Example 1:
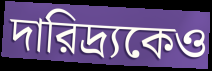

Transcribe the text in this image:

দারিদ্র্যকেও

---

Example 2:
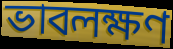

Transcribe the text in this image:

ভাবলক্ষণ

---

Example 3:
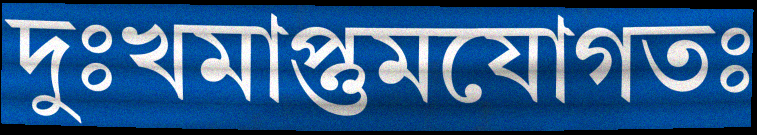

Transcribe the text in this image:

দুঃখমাপ্তুমযোগতঃ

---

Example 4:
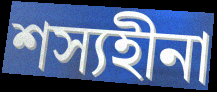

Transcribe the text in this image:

শস্যহীনা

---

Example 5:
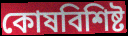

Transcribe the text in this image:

কোষবিশিষ্ট